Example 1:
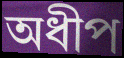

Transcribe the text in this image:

অধীপ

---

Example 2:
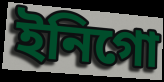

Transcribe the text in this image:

ইনিগো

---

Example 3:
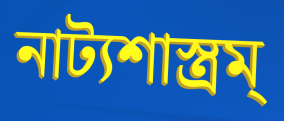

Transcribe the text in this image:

নাট্যশাস্ত্রম্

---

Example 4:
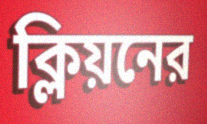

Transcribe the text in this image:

ক্লিয়নের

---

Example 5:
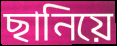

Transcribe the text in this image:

ছানিয়ে